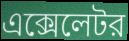
এক্সেলেটর